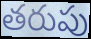
తరుపు